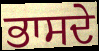
ਭਾਸਦੇ